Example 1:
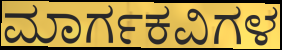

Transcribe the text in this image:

ಮಾರ್ಗಕವಿಗಳ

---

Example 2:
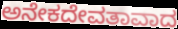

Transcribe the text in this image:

ಅನೇಕದೇವತಾವಾದ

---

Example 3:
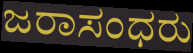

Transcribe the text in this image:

ಜರಾಸಂಧರು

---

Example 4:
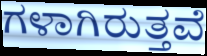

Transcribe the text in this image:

ಗಳಾಗಿರುತ್ತವೆ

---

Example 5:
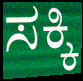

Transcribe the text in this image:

ಸಕ್ಕಿ